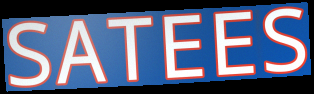
SATEES